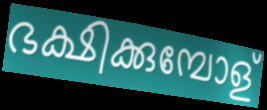
ഭക്ഷിക്കുമ്പോള്